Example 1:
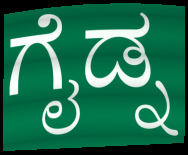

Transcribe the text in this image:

ಗೈಡ್ನ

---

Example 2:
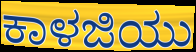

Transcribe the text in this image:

ಕಾಳಜಿಯು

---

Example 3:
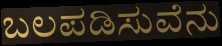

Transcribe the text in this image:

ಬಲಪಡಿಸುವೆನು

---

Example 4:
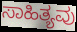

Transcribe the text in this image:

ಸಾಹಿತ್ಯವು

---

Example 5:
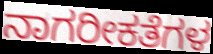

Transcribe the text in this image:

ನಾಗರೀಕತೆಗಳ